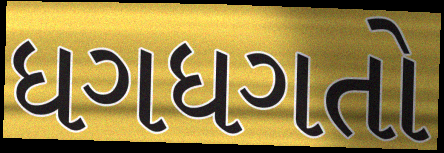
ધગધગતો